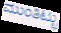
ಮುಂತಿಟ್ಟು